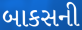
બાકસની